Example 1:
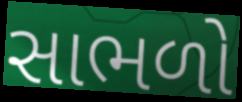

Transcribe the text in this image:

સાભળો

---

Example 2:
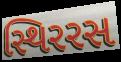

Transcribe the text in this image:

સ્થિરરસ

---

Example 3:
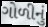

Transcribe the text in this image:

ગોળીનું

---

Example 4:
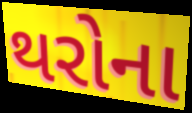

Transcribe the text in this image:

થરોના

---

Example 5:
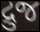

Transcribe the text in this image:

દ્રુજ